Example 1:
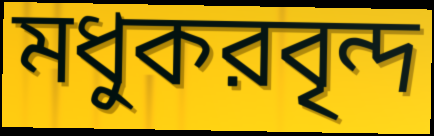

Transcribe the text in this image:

মধুকরবৃন্দ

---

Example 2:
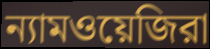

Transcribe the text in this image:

ন্যামওয়েজিরা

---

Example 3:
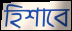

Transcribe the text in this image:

হিশাবে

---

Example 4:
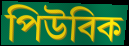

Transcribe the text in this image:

পিউবিক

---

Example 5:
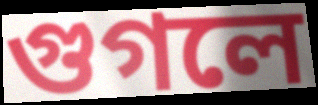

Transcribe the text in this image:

গুগলে